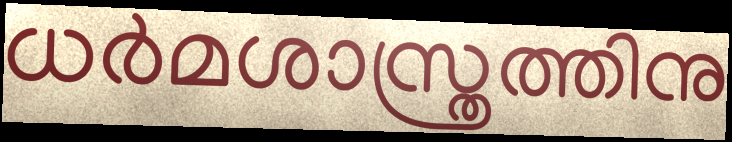
ധർമശാസ്ത്രത്തിനു